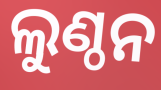
ଲୁଣ୍ଠନ